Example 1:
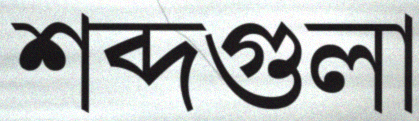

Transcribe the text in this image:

শব্দগুলা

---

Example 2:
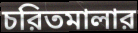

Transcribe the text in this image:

চরিতমালার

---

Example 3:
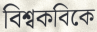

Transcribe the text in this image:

বিশ্বকবিকে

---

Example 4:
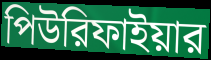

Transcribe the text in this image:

পিউরিফাইয়ার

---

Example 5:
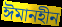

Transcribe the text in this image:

ঈমানহীন